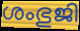
ശംഭുജി